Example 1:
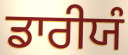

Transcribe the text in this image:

ਡਾਰੀਯੰ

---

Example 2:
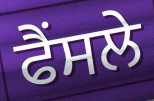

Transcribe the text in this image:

ਫੈਂਸਲੇ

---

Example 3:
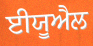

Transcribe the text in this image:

ਈਯੂਐਲ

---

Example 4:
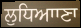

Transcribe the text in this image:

ਲੁਧਿਆਾਣਾ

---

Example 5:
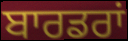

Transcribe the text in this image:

ਬਾਰਡਰਾਂ